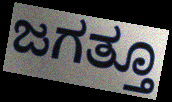
ಜಗತ್ತೂ